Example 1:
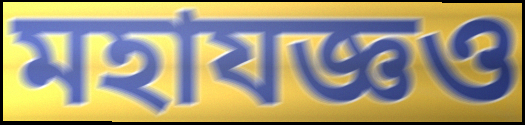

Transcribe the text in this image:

মহাযজ্ঞও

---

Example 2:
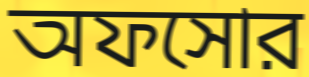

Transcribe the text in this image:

অফসোর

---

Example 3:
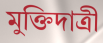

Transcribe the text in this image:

মুক্তিদাত্রী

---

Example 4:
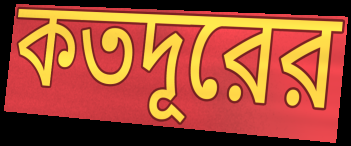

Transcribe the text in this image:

কতদূরের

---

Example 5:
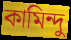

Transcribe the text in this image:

কামিন্দু